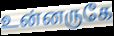
உன்னருகே